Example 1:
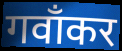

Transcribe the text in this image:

गवाँकर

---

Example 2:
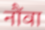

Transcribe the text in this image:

नौंवा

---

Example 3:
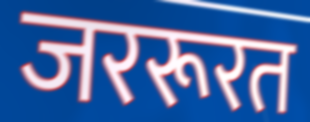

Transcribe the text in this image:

जररूरत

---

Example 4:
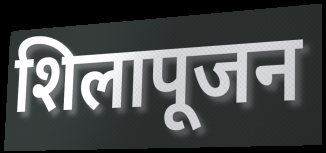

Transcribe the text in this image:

शिलापूजन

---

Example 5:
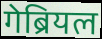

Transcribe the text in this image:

गेब्रियल